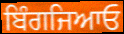
ਬਿੰਗਜਿਆਓ